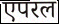
एपरल